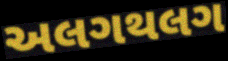
અલગથલગ